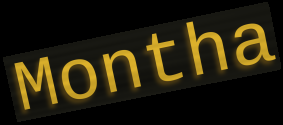
Montha